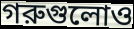
গরুগুলোও